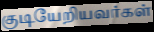
குடியேறியவர்கள்